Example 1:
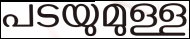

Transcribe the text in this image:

പടയുമുള്ള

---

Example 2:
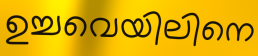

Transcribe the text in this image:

ഉച്ചവെയിലിനെ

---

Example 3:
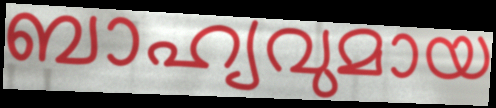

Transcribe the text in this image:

ബാഹ്യവുമായ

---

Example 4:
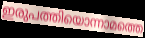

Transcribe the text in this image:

ഇരുപത്തിയൊന്നാമത്തെ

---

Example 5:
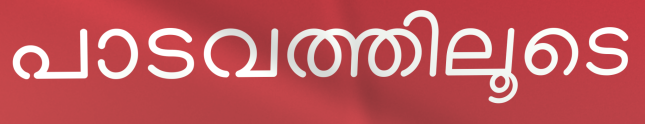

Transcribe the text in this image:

പാടവത്തിലൂടെ